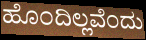
ಹೊಂದಿಲ್ಲವೆಂದು